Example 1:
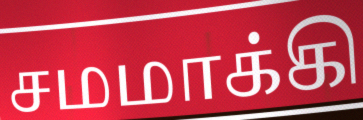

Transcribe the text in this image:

சமமாக்கி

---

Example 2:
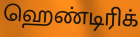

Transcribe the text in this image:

ஹெண்டிரிக்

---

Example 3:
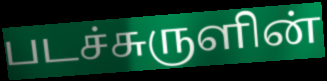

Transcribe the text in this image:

படச்சுருளின்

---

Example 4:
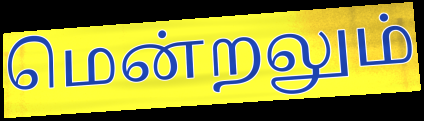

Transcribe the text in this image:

மென்றலும்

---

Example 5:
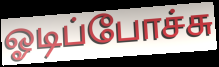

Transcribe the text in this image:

ஓடிப்போச்சு